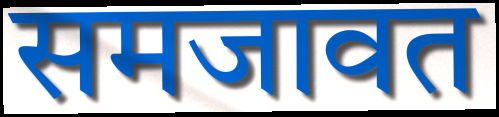
समजावत